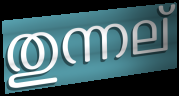
തുന്നല്